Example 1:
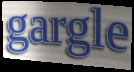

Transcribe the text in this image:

gargle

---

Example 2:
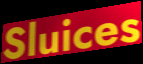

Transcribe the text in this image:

Sluices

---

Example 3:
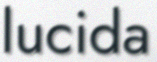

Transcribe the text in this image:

lucida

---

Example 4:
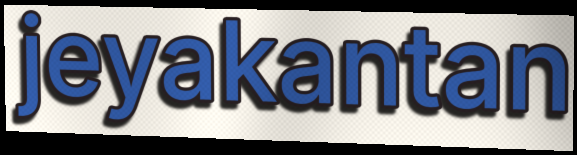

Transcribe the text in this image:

jeyakantan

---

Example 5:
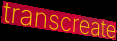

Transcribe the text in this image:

transcreate